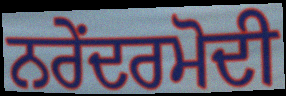
ਨਰੇਂਦਰਮੋਦੀ